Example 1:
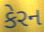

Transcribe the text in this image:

કેરન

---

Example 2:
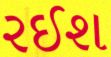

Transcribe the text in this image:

રઈશ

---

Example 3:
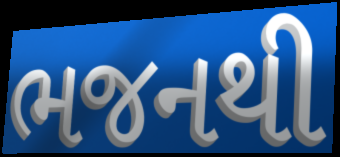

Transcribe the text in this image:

ભજનથી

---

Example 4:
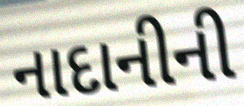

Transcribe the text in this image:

નાદાનીની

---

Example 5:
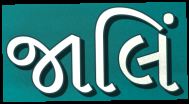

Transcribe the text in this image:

જાલિં